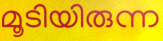
മൂടിയിരുന്ന